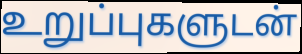
உறுப்புகளுடன்